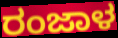
ರಂಜಾಳ